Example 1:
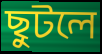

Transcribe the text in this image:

ছুটলে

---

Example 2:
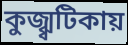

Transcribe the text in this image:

কুজ্ঝ্বটিকায়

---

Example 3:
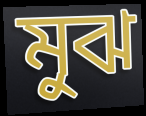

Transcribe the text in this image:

মুঝ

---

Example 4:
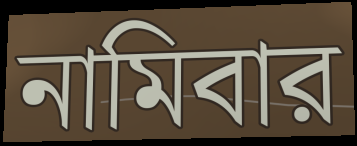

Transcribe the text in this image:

নামিবার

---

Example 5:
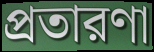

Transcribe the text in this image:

প্রতারণা